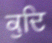
ਕੁਦਿ